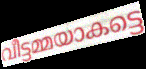
വീട്ടമ്മയാകട്ടെ